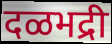
दळभद्री